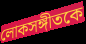
লোকসঙ্গীতকে